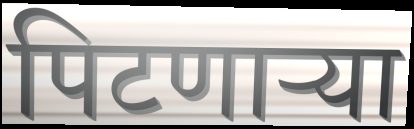
पिटणाऱ्या